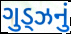
ગુડ્ઝનું